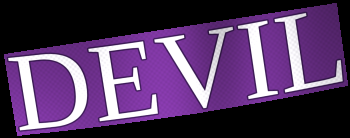
DEVIL